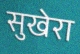
सुखेरा